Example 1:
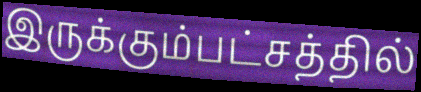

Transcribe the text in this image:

இருக்கும்பட்சத்தில்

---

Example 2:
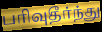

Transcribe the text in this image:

பரிவுதீர்ந்து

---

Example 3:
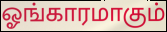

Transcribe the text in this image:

ஓங்காரமாகும்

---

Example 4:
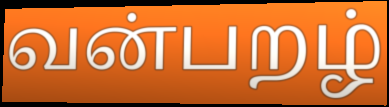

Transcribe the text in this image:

வன்பறழ்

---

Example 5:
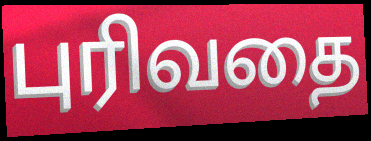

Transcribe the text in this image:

புரிவதை